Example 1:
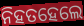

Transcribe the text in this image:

ନିହତହେଲେ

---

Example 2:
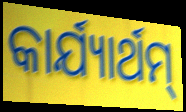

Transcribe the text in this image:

କାର୍ଯ୍ୟାର୍ଥମ୍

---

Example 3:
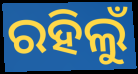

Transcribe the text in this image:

ରହିଲୁଁ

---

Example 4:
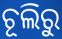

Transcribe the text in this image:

ଚୂଲିରୁ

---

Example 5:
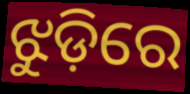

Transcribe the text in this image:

ଝୁଡ଼ିରେ